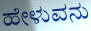
ಹೇಳುವನು